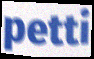
petti